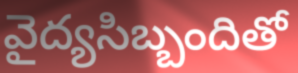
వైద్యసిబ్బందితో